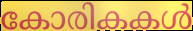
കോരികകൾ